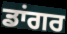
ਡਾਂਗਰ